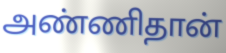
அண்ணிதான்